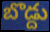
బొడ్దు